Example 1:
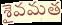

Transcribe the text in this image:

శైవమత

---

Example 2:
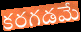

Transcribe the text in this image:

కరగడమే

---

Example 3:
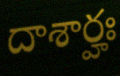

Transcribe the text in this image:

దాశార్హః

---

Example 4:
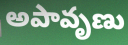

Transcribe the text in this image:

అపావృణు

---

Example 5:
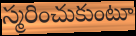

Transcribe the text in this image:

స్మరించుకుంటూ